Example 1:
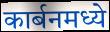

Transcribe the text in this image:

कार्बनमध्ये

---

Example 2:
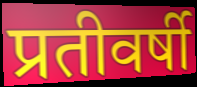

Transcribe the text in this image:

प्रतीवर्षी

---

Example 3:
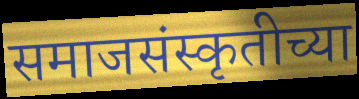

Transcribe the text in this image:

समाजसंस्कृतीच्या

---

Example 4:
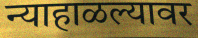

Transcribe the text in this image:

न्याहाळल्यावर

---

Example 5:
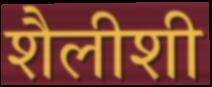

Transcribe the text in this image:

शैलीशी